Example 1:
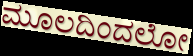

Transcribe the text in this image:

ಮೂಲದಿಂದಲೋ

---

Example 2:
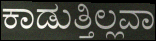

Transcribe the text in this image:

ಕಾಡುತ್ತಿಲ್ಲವಾ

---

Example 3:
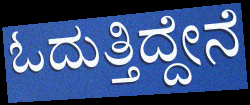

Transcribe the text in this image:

ಓದುತ್ತಿದ್ದೇನೆ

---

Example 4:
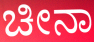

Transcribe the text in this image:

ಚೀನಾ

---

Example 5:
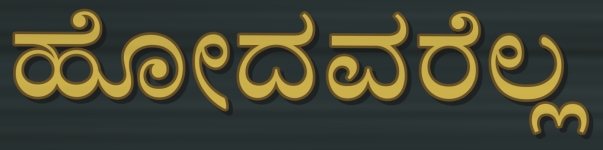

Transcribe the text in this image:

ಹೋದವರೆಲ್ಲ